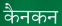
कैनकन